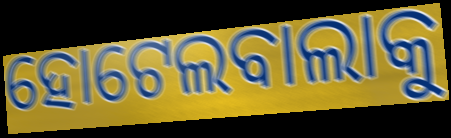
ହୋଟେଲବାଲାକୁ